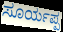
ಸೂರ್ಯಪ್ಪ